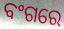
ବଂଗରେ